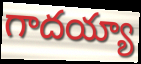
గాదయ్యా